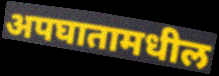
अपघातामधील